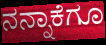
ನನ್ನಾಕೆಗೂ